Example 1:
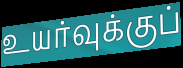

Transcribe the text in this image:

உயர்வுக்குப்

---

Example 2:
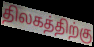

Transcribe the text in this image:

திலகத்திற்கு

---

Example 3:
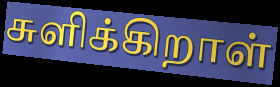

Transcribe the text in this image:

சுளிக்கிறாள்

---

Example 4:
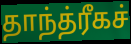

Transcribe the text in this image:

தாந்த்ரீகச்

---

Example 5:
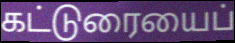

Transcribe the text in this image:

கட்டுரையைப்